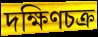
দক্ষিণচক্র